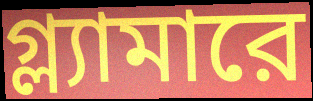
গ্ল্যামারে